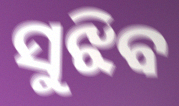
ସୁଝିବ